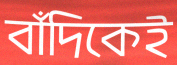
বাঁদিকেই